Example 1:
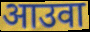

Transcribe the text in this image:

आउवा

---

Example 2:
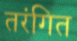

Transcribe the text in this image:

तरंगित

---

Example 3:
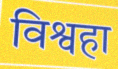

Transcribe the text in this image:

विश्वहा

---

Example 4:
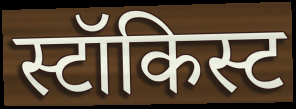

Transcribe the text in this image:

स्टॉकिस्ट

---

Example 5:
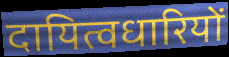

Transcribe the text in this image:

दायित्वधारियों